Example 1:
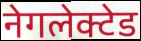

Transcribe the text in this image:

नेगलेक्टेड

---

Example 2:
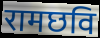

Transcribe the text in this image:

रामछवि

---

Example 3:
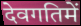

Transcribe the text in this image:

देवगतिमें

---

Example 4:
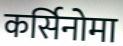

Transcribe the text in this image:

कर्सिनोमा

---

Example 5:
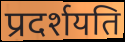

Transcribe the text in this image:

प्रदर्शयति